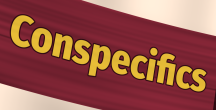
Conspecifics